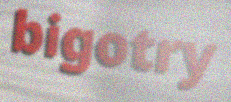
bigotry